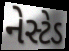
નેસ્ટેડ